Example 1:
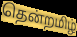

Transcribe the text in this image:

தென்றமிழ்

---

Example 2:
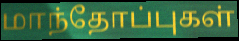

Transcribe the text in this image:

மாந்தோப்புகள்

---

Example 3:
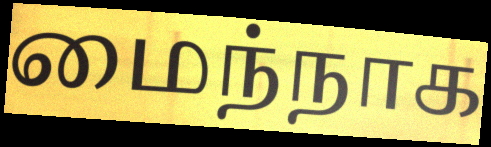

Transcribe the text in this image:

மைந்நாக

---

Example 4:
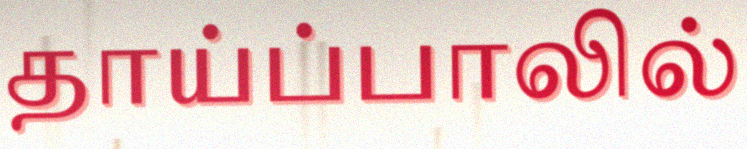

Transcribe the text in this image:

தாய்ப்பாலில்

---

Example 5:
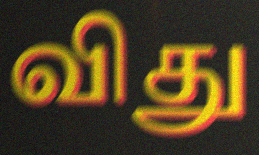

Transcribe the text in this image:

விது